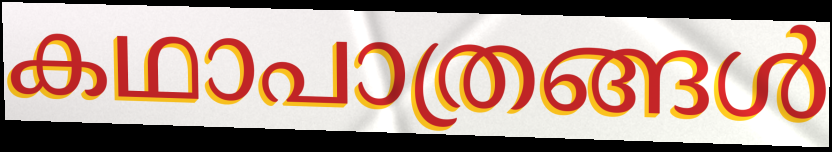
കഥാപാത്രങ്ങൾ